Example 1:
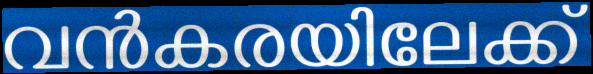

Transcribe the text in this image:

വൻകരയിലേക്ക്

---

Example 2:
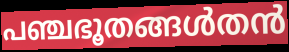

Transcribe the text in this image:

പഞ്ചഭൂതങ്ങൾതൻ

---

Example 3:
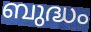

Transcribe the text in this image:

ബുദ്ധം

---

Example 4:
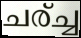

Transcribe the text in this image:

ചര്ച്ച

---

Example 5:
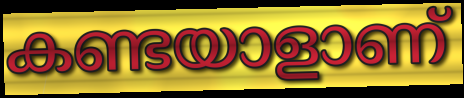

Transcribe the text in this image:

കണ്ടയാളാണ്